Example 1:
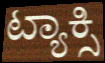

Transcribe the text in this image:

ಟ್ಯಾಕ್ಸಿ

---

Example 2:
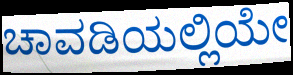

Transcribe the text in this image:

ಚಾವಡಿಯಲ್ಲಿಯೇ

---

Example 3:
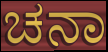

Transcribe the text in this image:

ಚನಾ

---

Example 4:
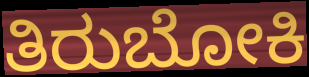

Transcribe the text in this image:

ತಿರುಬೋಕಿ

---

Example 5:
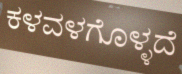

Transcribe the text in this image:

ಕಳವಳಗೊಳ್ಳದೆ